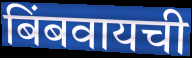
बिंबवायची